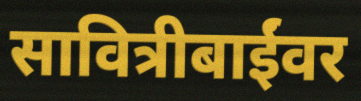
सावित्रीबाईंवर